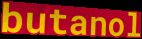
butanol